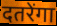
दतरेंगा